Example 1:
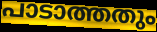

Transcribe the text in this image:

പാടാത്തതും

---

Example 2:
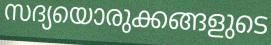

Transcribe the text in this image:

സദ്യയൊരുക്കങ്ങളുടെ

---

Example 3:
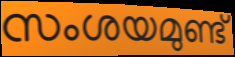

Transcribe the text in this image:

സംശയമുണ്ട്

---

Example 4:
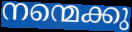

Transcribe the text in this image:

നന്മെക്കു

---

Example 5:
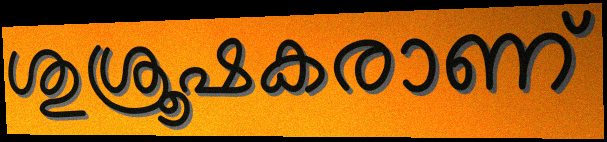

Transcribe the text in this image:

ശുശ്രൂഷകരാണ്